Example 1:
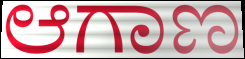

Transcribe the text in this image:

ಆಗಾಣ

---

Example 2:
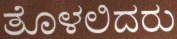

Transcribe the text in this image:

ತೊಳಲಿದರು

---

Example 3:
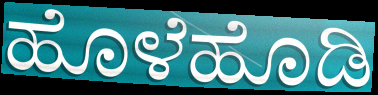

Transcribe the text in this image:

ಹೊಳೆಹೊಡಿ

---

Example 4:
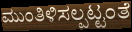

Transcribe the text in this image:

ಮುಂತಿಳಿಸಲ್ಪಟ್ಟಂತೆ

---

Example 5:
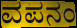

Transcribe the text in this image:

ವಪನಂ